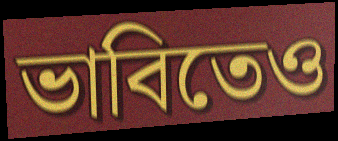
ভাবিতেও